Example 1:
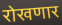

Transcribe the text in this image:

रोखणार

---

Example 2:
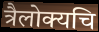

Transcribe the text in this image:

त्रैलोक्यचि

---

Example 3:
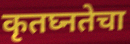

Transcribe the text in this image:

कृतघ्नतेचा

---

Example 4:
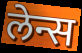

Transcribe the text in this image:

लेन्स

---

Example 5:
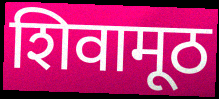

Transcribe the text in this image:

शिवामूठ